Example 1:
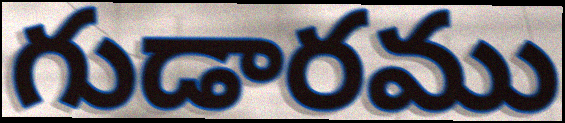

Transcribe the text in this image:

గుడారము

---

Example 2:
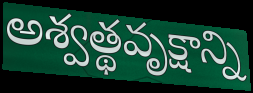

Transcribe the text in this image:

అశ్వత్థవృక్షాన్ని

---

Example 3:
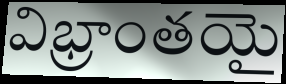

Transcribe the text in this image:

విభ్రాంతయై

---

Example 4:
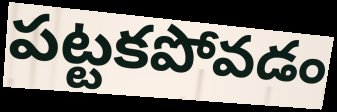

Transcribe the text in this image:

పట్టకపోవడం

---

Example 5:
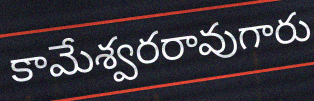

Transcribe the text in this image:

కామేశ్వరరావుగారు